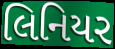
લિનિયર